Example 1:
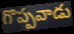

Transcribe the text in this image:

గొప్పవాడు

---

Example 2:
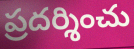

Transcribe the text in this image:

ప్రదర్శించు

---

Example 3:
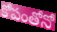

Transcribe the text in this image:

కోపంతోనో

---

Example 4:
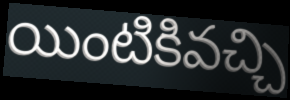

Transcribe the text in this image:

యింటికివచ్చి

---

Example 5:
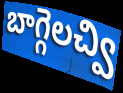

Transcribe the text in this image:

బాగ్గెలచ్వి